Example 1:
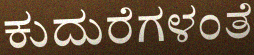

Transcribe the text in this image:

ಕುದುರೆಗಳಂತೆ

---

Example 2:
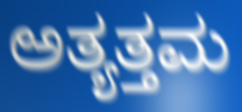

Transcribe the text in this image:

ಅತ್ಯತ್ತಮ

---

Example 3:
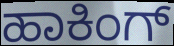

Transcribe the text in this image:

ಹಾಕಿಂಗ್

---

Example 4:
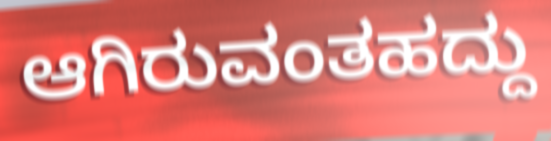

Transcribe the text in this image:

ಆಗಿರುವಂತಹದ್ದು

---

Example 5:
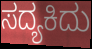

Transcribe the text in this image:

ಸದ್ಯಕಿದು